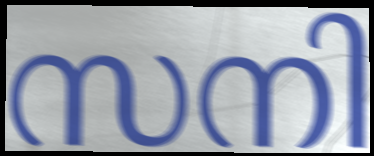
സനി